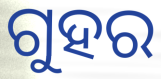
ଗୁହର